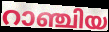
റാഞ്ചിയ